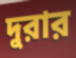
দুরার